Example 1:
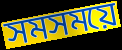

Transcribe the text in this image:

সমসময়ে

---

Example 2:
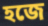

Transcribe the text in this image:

হজে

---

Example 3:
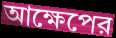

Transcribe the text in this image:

আক্ষেপের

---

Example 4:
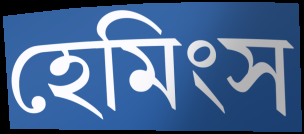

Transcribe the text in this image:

হেমিংস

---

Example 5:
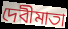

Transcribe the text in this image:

দেবীমাতা